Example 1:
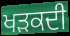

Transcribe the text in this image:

ਖੜਕਦੀ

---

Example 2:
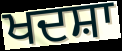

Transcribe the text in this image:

ਖਦਸ਼ਾ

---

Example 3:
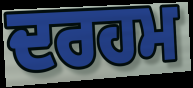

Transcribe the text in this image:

ਦਰਹਮ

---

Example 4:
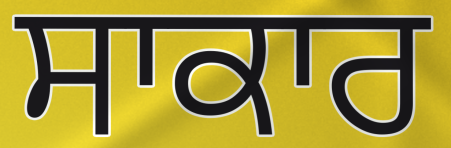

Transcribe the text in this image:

ਸਾਕਾਰ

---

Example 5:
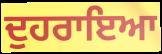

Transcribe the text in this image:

ਦੁਹਰਾਇਆ